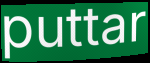
puttar